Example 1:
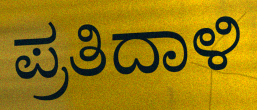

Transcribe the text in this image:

ಪ್ರತಿದಾಳಿ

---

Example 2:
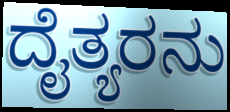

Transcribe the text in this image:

ದೈತ್ಯರನು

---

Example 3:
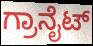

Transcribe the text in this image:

ಗ್ರಾನೈಟ್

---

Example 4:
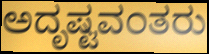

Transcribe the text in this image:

ಅದೃಷ್ಟವಂತರು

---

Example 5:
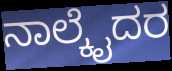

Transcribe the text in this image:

ನಾಲ್ಕೈದರ